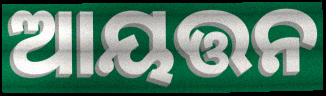
ଆୟତ୍ତନ